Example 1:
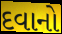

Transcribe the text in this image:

દવાનો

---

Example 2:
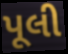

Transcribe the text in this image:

પૂલી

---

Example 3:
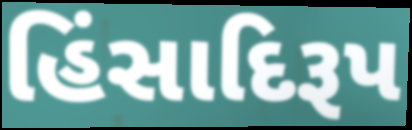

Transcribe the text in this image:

હિંસાદિરૂપ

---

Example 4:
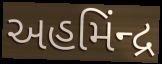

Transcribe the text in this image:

અહમિંન્દ્ર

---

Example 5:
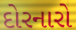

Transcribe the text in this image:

દોરનારો